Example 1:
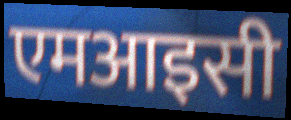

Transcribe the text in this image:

एमआइसी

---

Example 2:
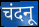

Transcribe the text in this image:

चंदनू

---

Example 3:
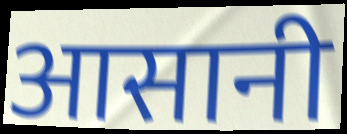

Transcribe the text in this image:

आसानी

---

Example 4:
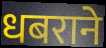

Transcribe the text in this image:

धबराने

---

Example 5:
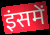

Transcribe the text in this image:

इंसमें